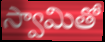
స్వామితో